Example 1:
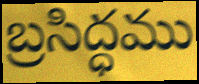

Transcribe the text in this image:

బ్రసిద్ధము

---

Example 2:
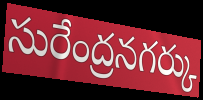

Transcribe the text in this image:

సురేంద్రనగర్కు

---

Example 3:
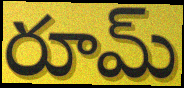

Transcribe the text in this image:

రూమ్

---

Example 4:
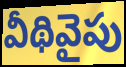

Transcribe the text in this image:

వీథివైపు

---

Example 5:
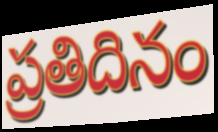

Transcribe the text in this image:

ప్రతిదినం